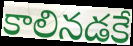
కాలినడకే